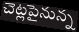
చెట్లపైనున్న